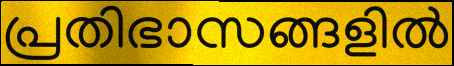
പ്രതിഭാസങ്ങളിൽ